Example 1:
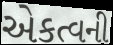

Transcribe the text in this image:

એકત્વની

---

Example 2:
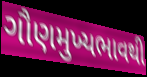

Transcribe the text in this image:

ગૌણમુખ્યભાવથી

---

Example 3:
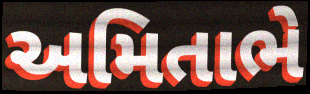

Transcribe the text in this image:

અમિતાભે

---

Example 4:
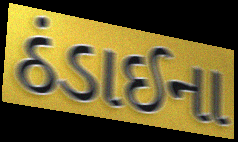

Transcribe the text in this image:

ઠંડાઈના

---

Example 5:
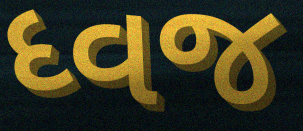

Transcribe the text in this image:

ધ્વજ